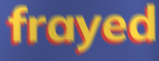
frayed